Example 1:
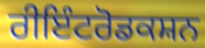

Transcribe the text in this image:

ਰੀਇੰਟਰੋਡਕਸ਼ਨ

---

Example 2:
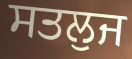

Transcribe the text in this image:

ਸਤਲੁਜ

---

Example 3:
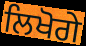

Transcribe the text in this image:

ਲਿਖੋਗੇ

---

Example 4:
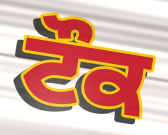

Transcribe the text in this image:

ਟੌਕ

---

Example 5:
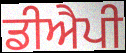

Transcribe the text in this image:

ਡੀਐਪੀ